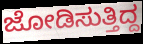
ಜೋಡಿಸುತ್ತಿದ್ದ